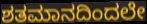
ಶತಮಾನದಿಂದಲೇ